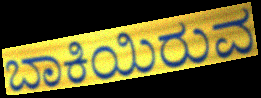
ಬಾಕಿಯಿರುವ